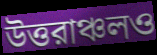
উত্তরাঞ্চলও